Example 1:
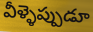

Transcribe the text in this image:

వీళ్ళెప్పుడూ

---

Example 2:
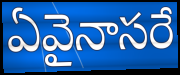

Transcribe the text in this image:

ఏవైనాసరే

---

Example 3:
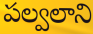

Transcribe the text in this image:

పల్వలాని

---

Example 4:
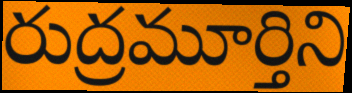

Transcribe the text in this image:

రుద్రమూర్తిని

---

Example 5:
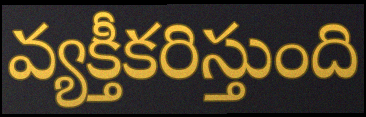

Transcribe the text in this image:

వ్యక్తీకరిస్తుంది